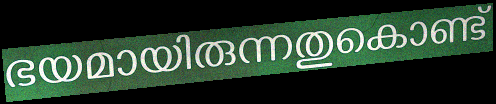
ഭയമായിരുന്നതുകൊണ്ട്